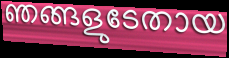
ഞങ്ങളുടേതായ